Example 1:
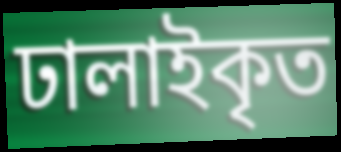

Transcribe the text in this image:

ঢালাইকৃত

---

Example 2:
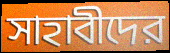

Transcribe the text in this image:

সাহাবীদের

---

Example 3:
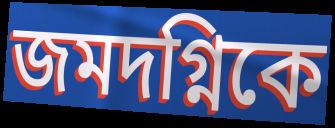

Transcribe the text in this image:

জমদগ্নিকে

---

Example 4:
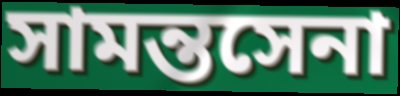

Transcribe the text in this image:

সামন্তসেনা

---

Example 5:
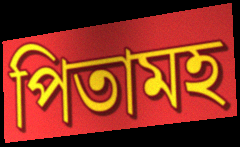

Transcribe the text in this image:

পিতামহ